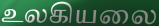
உலகியலை